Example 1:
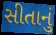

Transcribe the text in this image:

સીતાનું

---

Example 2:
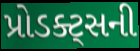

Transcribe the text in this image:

પ્રોડક્ટ્સની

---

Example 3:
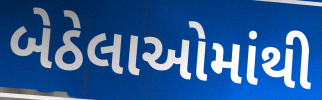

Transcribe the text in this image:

બેઠેલાઓમાંથી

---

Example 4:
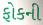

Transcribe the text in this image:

ફોકની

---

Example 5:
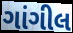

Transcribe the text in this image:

ગાંગીલ